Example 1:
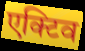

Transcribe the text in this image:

एक्टिव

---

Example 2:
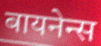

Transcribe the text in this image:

बायनेन्स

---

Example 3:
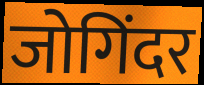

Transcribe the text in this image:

जोगिंदर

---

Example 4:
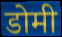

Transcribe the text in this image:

डोमी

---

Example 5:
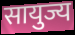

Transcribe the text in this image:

सायुज्य